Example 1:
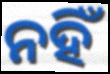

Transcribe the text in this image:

ନହିଁ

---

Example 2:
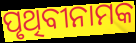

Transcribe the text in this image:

ପୃଥିବୀନାମକ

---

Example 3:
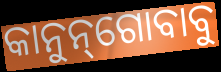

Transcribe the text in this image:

କାନୁନ୍‌ଗୋବାବୁ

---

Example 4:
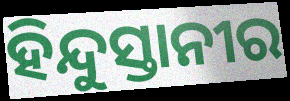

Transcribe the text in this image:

ହିନ୍ଦୁସ୍ତାନୀର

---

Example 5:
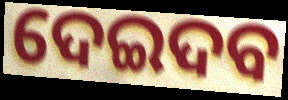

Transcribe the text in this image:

ଦେଇଦବ